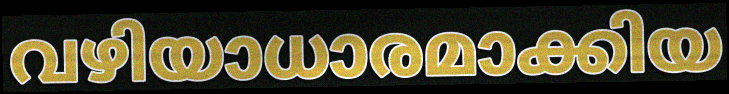
വഴിയാധാരമാക്കിയ